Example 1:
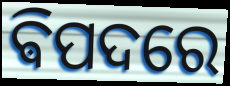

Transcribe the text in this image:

ଵିପଦରେ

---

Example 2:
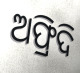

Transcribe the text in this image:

ଅଫ୍ରିଦି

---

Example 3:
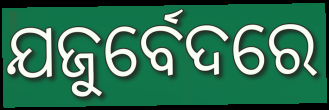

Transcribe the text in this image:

ଯଜୁର୍ବେଦରେ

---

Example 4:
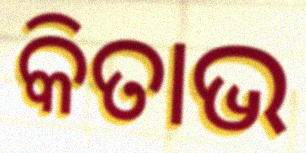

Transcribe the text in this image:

କିତାଭ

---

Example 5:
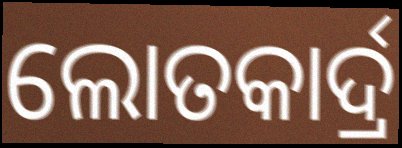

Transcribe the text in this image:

ଲୋତକାର୍ଦ୍ର